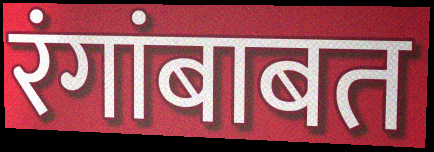
रंगांबाबत